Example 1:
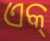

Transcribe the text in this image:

ଏକ୍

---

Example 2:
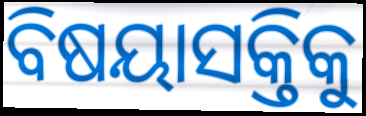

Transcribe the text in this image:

ବିଷୟାସକ୍ତିକୁ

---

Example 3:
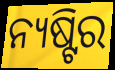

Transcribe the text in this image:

ନ୍ୟଷ୍ଟିର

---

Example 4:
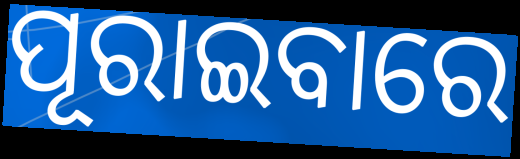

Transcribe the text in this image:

ପୂରାଇବାରେ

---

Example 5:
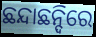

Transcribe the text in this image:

ଛନ୍ଦାଛନ୍ଦିରେ